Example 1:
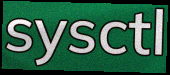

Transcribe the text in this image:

sysctl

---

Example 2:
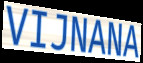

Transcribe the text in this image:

VIJNANA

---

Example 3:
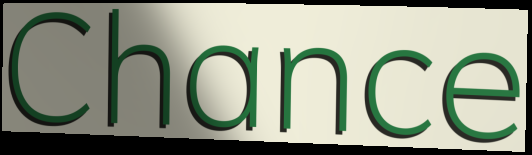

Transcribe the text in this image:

Chance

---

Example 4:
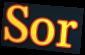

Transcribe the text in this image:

Sor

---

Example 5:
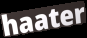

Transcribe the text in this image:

haater